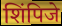
शिंपिजे